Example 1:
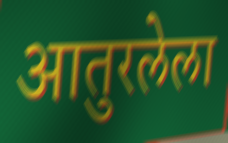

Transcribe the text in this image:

आतुरलेला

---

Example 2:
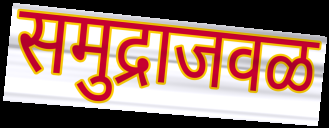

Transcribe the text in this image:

समुद्राजवळ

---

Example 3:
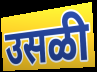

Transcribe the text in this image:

उसळी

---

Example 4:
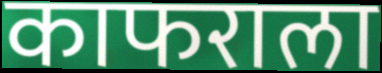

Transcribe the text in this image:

काफराला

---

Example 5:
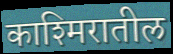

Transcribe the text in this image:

काश्मिरातील